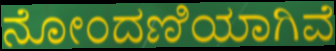
ನೋಂದಣಿಯಾಗಿವೆ